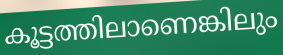
കൂട്ടത്തിലാണെങ്കിലും